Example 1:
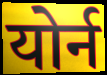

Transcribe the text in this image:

योर्न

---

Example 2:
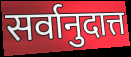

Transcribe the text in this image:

सर्वानुदात्त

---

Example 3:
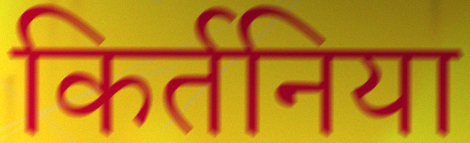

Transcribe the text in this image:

किर्तनिया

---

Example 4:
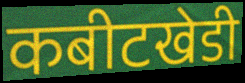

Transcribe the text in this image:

कबीटखेडी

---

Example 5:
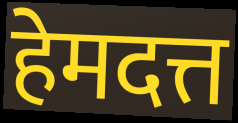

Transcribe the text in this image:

हेमदत्त